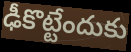
ఢీకొట్టేందుకు